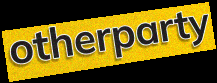
otherparty